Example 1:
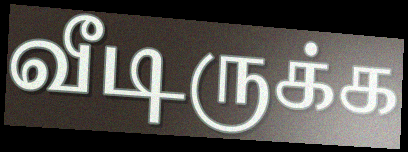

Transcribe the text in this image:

வீடிருக்க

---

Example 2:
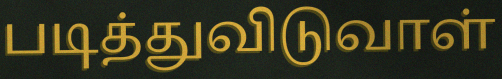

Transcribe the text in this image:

படித்துவிடுவாள்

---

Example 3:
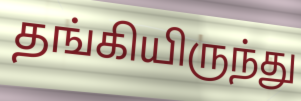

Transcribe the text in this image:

தங்கியிருந்து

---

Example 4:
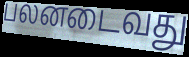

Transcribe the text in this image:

பலனடைவது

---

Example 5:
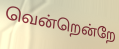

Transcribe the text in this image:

வென்றென்றே